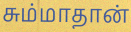
சும்மாதான்